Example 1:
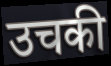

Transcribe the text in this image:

उचकी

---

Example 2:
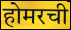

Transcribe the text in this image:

होमरची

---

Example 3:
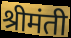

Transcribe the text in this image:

श्रीमंती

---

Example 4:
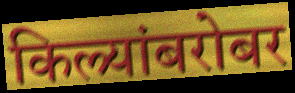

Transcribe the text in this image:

किल्यांबरोबर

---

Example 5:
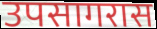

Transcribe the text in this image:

उपसागरास